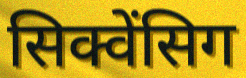
सिक्वेंसिग